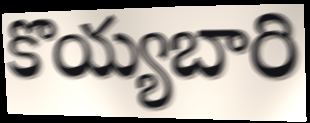
కొయ్యబారి